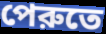
পেরুতে